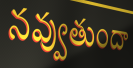
నవ్వుతుందా